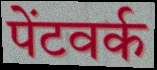
पेंटवर्क